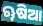
ୠଷିଆ